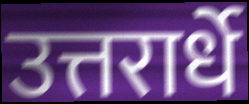
उत्तरार्धे